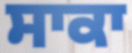
ਸਾਕਾ